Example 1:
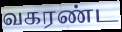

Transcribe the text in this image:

வகரண்ட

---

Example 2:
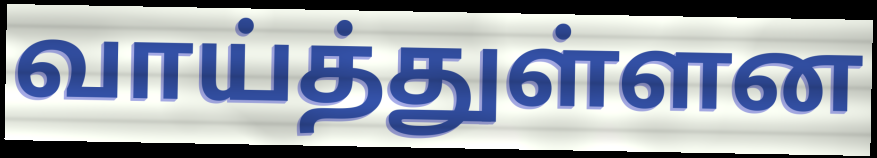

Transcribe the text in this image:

வாய்த்துள்ளன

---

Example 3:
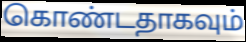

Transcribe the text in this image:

கொண்டதாகவும்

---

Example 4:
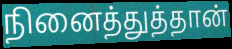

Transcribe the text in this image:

நினைத்துத்தான்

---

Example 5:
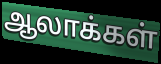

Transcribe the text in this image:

ஆலாக்கள்